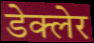
डेक्लेर